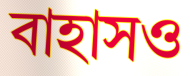
বাহাসও